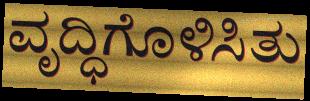
ವೃದ್ಧಿಗೊಳಿಸಿತು